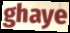
ghaye